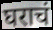
घराचं